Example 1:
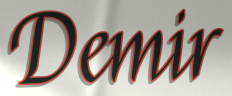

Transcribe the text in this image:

Demir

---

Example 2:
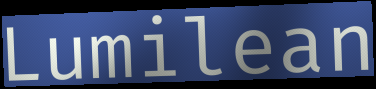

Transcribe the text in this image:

Lumilean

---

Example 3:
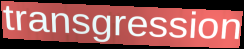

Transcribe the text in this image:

transgression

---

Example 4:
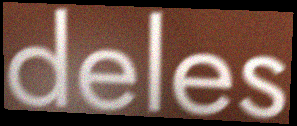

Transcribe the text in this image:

deles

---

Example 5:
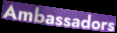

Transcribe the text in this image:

Ambassadors